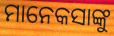
ମାନେକସାଙ୍କୁ